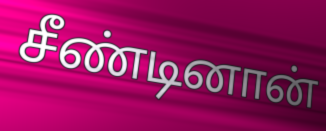
சீண்டினான்